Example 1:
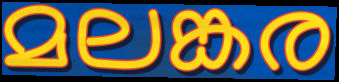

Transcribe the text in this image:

മലങ്കര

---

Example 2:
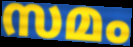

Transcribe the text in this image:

സമം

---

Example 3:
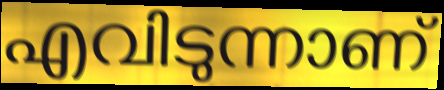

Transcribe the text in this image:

എവിടുന്നാണ്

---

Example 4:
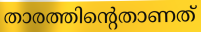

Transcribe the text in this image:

താരത്തിന്റെതാണത്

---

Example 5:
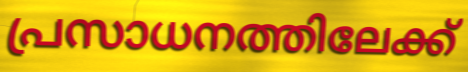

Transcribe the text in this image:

പ്രസാധനത്തിലേക്ക്